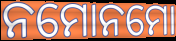
ନମୋନମୋ